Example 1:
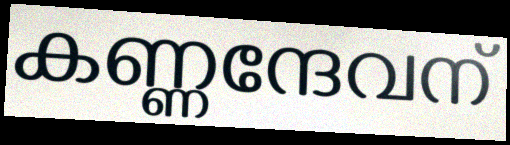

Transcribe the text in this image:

കണ്ണന്ദേവന്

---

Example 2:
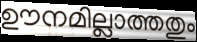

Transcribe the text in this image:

ഊനമില്ലാത്തതും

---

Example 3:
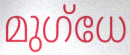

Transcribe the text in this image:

മുഗ്ധേ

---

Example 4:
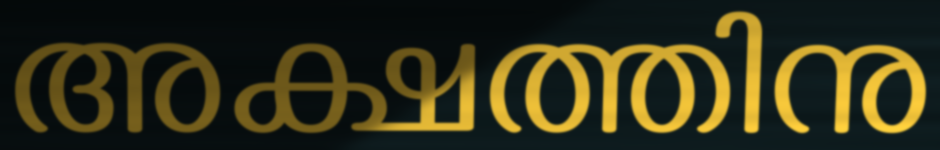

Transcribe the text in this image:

അക്ഷത്തിനു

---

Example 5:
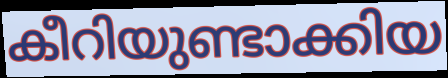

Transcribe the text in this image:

കീറിയുണ്ടാക്കിയ